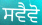
ਸਵੈਵੋ